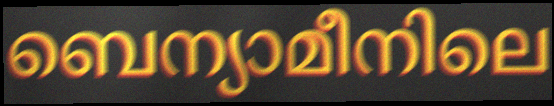
ബെന്യാമീനിലെ